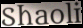
Shaoli